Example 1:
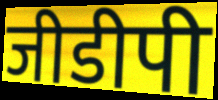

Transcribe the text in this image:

जीडीपी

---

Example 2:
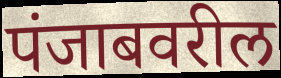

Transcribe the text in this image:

पंजाबवरील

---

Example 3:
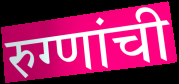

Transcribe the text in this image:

रुग्‍णांची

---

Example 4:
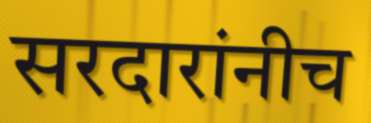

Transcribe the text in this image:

सरदारांनीच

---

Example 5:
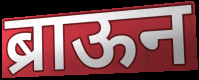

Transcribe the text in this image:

ब्राऊन